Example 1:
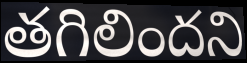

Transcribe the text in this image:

తగిలిందని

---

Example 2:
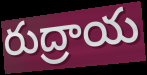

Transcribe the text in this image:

రుద్రాయ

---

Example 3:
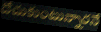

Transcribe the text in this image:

దోచుకుంటున్నారనే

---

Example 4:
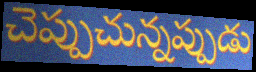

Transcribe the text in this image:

చెప్పుచున్నప్పుడు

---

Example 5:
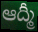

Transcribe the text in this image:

ఆద్మీ